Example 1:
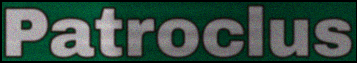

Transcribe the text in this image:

Patroclus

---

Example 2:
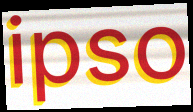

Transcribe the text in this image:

ipso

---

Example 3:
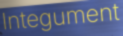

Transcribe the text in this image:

Integument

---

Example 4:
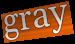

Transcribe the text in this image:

gray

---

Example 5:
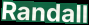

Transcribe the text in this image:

Randall